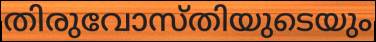
തിരുവോസ്തിയുടെയും